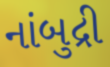
નાંબુદ્રી